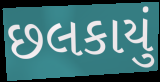
છલકાયું